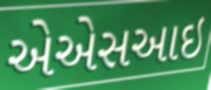
એએસઆઇ